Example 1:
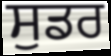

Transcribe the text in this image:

ਸੁਡਰ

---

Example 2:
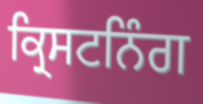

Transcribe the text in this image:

ਕ੍ਰਿਸਟਨਿੰਗ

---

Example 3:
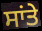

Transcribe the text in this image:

ਸਾਂਤੇ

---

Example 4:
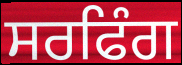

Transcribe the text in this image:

ਸਰਫਿੰਗ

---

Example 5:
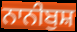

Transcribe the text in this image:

ਨਾਨੀਬੁਸ਼